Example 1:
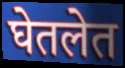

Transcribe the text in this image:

घेतलेत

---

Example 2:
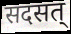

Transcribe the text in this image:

सदसत्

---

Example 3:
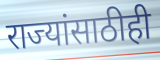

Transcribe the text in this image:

राज्यांसाठीही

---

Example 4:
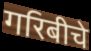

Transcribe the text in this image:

गरिबीचे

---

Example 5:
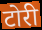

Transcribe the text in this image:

टोरी